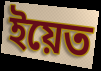
ইয়েত